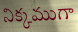
నిక్కముగా